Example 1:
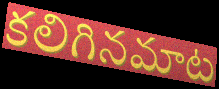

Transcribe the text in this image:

కలిగినమాట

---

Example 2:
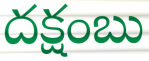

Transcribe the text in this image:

దక్షంబు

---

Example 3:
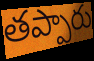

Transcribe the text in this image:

తప్పారు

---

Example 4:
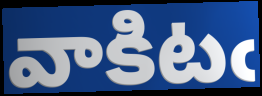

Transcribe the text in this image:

వాకిటఁ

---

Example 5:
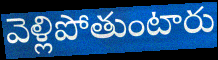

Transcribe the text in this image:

వెళ్లిపోతుంటారు